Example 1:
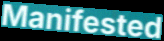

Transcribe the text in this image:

Manifested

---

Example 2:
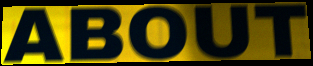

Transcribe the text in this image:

ABOUT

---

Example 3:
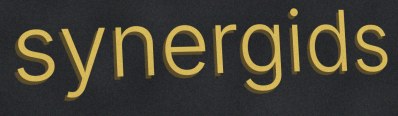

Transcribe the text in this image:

synergids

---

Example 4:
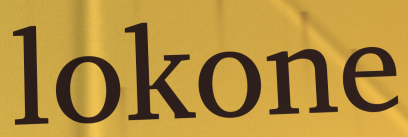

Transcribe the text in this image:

lokone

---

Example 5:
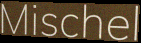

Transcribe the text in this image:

Mischel